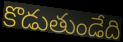
కొడుతుండేది